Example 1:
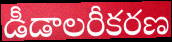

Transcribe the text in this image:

డీడాలరీకరణ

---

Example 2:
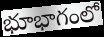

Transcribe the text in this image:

భూభాగంలో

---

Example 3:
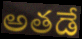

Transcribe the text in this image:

అతడే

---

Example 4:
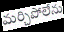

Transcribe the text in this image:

మర్చిపోలేను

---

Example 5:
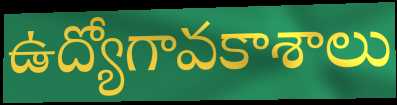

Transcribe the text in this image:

ఉద్యోగావకాశాలు